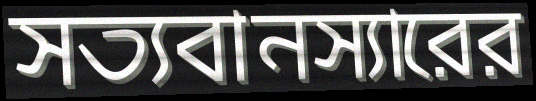
সত্যবানস্যারের